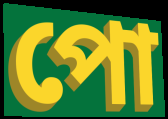
পো